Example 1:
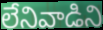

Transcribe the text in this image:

లేనివాడిని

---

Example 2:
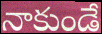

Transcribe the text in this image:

నాకుండే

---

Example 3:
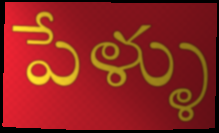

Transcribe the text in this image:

పేళ్ళు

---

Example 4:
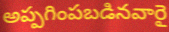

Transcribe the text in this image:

అప్పగింపబడినవారై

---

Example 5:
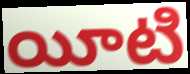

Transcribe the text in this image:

యీటి